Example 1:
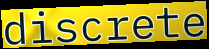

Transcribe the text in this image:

discrete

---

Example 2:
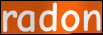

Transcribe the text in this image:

radon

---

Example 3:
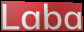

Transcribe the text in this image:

Laba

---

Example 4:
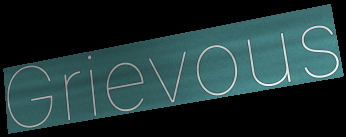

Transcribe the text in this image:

Grievous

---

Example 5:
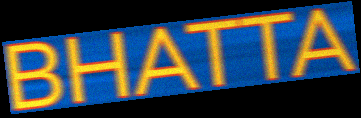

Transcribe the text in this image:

BHATTA